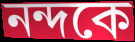
নন্দকে